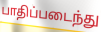
பாதிப்படைந்து